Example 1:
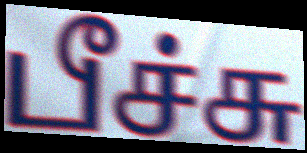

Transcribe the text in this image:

பீச்சு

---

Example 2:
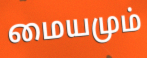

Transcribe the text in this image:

மையமும்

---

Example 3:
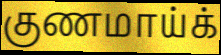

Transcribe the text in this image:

குணமாய்க்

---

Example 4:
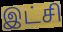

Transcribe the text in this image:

இட்சி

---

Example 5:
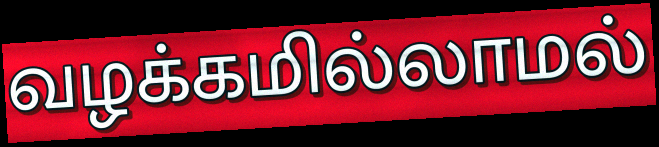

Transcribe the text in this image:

வழக்கமில்லாமல்